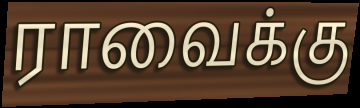
ராவைக்கு